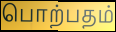
பொற்பதம்